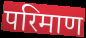
परिमाण